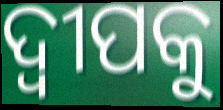
ଦ୍ୱୀପକୁ